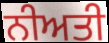
ਨੀਅਤੀ